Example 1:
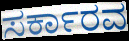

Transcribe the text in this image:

ಸರ್ಕಾರವ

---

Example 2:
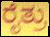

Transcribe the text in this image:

ರೈತ್ರು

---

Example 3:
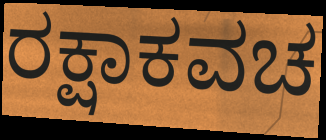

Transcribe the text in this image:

ರಕ್ಷಾಕವಚ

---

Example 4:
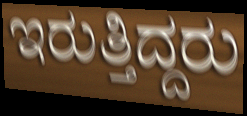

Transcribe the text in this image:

ಇರುತ್ತಿದ್ದರು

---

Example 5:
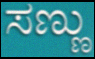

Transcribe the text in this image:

ಸಣ್ಣು